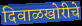
दिवाळखोरीचे